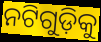
ନଟିଗୁଡ଼ିକୁ